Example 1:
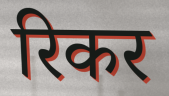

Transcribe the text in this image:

रिकर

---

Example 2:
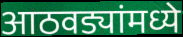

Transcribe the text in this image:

आठवड्यांमध्ये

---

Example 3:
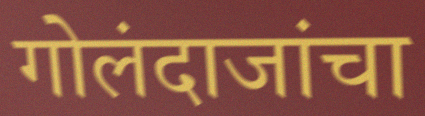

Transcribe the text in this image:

गोलंदाजांचा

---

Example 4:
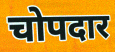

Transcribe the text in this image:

चोपदार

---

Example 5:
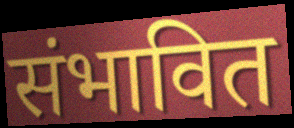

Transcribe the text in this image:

संभावित